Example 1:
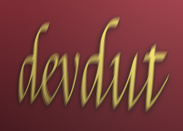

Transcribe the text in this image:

devdut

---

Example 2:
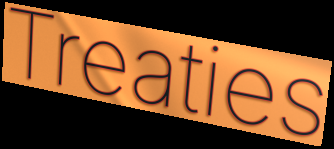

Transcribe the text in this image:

Treaties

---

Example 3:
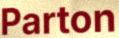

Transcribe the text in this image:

Parton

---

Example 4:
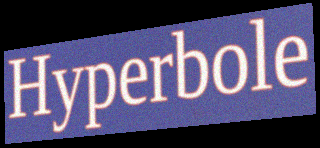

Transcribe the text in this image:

Hyperbole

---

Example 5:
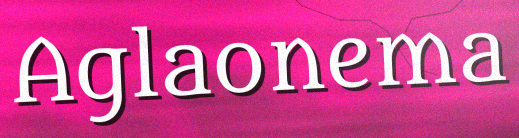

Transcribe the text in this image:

Aglaonema